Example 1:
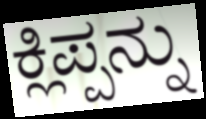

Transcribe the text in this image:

ಕ್ಲಿಪ್ಪನ್ನು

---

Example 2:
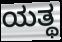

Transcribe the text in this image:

ಯತ್ಥ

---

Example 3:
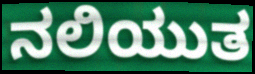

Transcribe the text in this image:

ನಲಿಯುತ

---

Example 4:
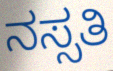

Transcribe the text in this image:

ನಸ್ಸತಿ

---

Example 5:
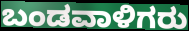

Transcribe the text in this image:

ಬಂಡವಾಳಿಗರು